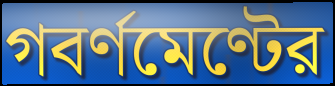
গবর্ণমেণ্টের